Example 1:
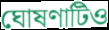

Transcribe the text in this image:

ঘোষণাটিও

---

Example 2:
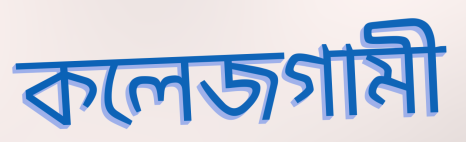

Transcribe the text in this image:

কলেজগামী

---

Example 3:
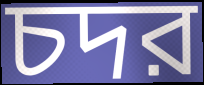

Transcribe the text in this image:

চদর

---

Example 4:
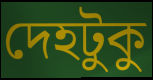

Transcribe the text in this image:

দেহটুকু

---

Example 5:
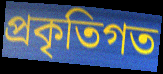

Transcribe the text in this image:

প্রকৃতিগত